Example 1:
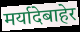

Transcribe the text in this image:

मर्यादेबाहेर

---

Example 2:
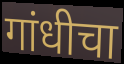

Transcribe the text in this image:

गांधीचा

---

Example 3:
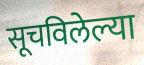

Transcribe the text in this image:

सूचविलेल्या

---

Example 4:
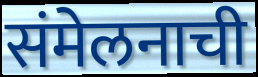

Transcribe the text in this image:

संमेलनाची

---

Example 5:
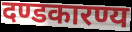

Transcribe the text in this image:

दण्डकारण्य